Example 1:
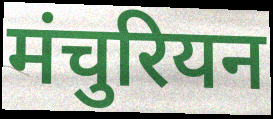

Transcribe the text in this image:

मंचुरियन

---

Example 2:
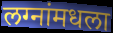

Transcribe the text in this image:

लग्नांमधला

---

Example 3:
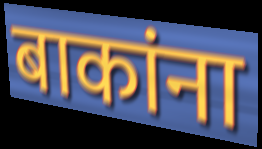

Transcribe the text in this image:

बाकांना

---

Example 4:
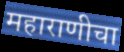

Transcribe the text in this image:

महाराणीचा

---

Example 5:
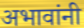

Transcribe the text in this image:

अभावांनी